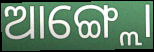
ଆଙ୍ଗ୍ଲୋ